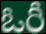
ఓరీ